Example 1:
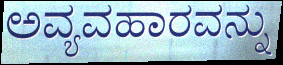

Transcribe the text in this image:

ಅವ್ಯವಹಾರವನ್ನು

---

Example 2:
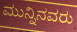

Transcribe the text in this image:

ಮುನ್ನಿನವರು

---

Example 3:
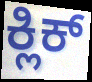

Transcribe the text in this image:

ಕ್ಲಿಕ್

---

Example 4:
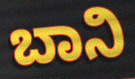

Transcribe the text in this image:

ಬಾನಿ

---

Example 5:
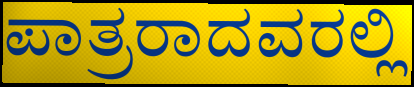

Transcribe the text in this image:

ಪಾತ್ರರಾದವರಲ್ಲಿ